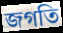
জগতি